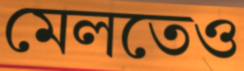
মেলতেও